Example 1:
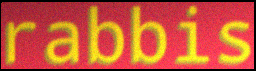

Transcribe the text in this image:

rabbis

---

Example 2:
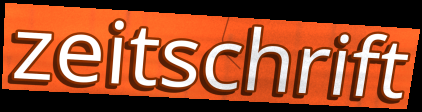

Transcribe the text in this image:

zeitschrift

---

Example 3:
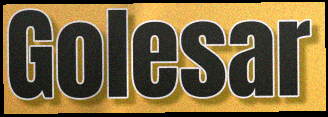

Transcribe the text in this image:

Golesar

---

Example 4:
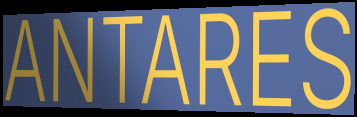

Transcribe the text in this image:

ANTARES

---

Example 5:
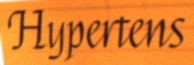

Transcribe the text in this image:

Hypertens